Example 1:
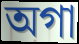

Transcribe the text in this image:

অগা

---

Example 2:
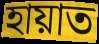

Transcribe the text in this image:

হায়াত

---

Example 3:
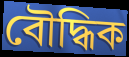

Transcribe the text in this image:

বৌদ্ধিক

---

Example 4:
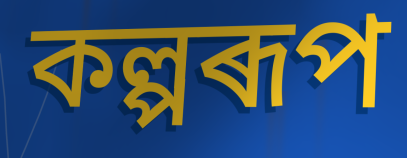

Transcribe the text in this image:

কল্পৰূপ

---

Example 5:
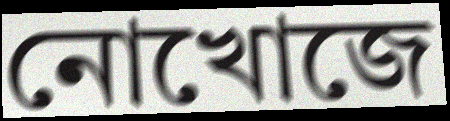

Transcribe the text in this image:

নোখোজে